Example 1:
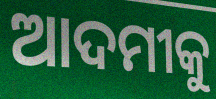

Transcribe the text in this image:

ଆଦମୀକୁ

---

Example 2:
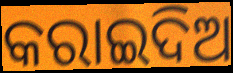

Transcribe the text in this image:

କରାଇଦିଅ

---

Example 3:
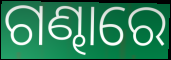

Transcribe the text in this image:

ଗଣ୍ଢାରେ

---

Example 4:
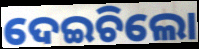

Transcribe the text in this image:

ଦେଇଚିଲୋ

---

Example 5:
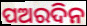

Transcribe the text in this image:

ପଅରଦିନ